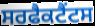
ਸਰਫੈਕਟੈਂਟਸ